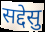
सद्देसु